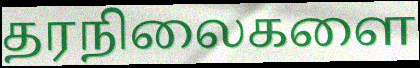
தரநிலைகளை